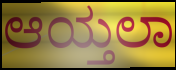
ಆಯ್ತಲಾ